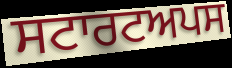
ਸਟਾਰਟਅਪਸ